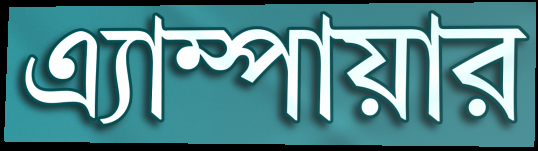
এ্যাম্পায়ার